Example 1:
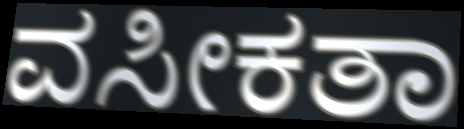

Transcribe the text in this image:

ವಸೀಕತಾ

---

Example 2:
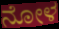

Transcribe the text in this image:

ನೋಳ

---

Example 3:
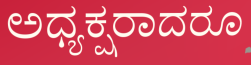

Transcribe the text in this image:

ಅಧ್ಯಕ್ಷರಾದರೂ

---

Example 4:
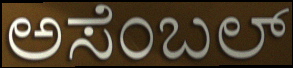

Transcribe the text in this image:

ಅಸೆಂಬಲ್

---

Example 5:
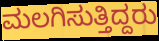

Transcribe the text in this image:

ಮಲಗಿಸುತ್ತಿದ್ದರು